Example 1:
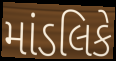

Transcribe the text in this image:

માંડલિકે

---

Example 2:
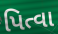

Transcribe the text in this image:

પિત્વા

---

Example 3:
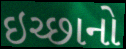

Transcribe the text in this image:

ઇચ્છાનો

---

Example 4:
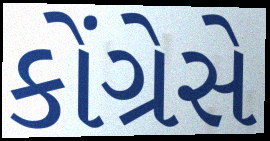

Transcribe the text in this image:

કોંગ્રેસે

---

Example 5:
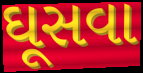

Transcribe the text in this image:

ઘૂસવા